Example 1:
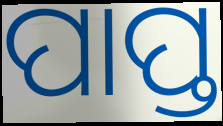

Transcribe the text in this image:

ପାପ୍ତ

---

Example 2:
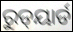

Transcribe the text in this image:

ରୁଡ୍‌ୟାର୍ଡ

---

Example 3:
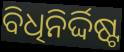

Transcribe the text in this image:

ବିଧିନିର୍ଦ୍ଦିଷ୍ଟ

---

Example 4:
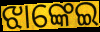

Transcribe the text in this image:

ଝାଙ୍କେଇ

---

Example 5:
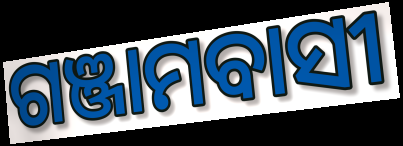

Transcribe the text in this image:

ଗଞ୍ଜାମବାସୀ